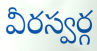
వీరస్వర్గ